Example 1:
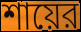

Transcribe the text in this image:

শায়ের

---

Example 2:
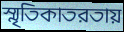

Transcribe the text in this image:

স্মৃতিকাতরতায়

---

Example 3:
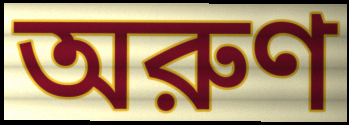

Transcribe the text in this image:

অরুণ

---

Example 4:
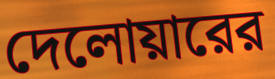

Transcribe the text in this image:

দেলোয়ারের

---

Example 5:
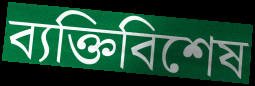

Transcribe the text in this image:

ব্যক্তিবিশেষ